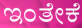
ಇಂತೇಕೆ